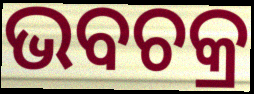
ଭବଚକ୍ର